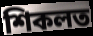
শিকলত